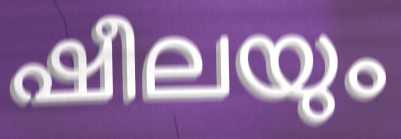
ഷീലയും